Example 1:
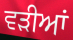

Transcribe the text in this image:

ਵੜੀਆਂ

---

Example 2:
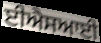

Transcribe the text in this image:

ਈਐਸਆਈ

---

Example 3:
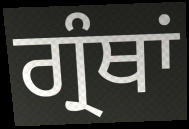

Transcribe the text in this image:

ਗ੍ਰੰਥਾਂ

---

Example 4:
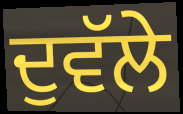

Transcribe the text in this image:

ਦੁਵੱਲੇ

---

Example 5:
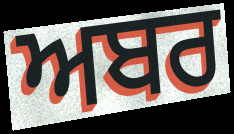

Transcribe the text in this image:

ਅਬਰ